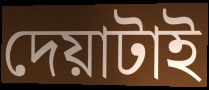
দেয়াটাই